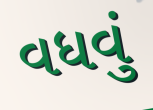
વધવું